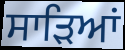
ਸਾੜਿਆਂ